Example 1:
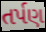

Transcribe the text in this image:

તર્પણ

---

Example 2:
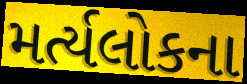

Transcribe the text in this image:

મર્ત્યલોકના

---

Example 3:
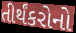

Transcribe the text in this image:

તીર્થંકરોનો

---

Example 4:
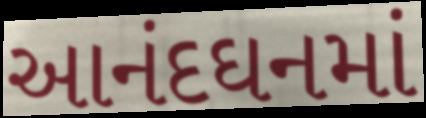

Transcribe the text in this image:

આનંદઘનમાં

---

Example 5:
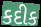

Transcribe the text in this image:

કદીક